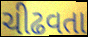
ચીઢવતા